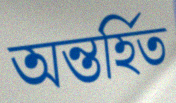
অন্তর্হিত